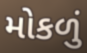
મોકળું